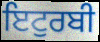
ਇਟੁਰਬੀ